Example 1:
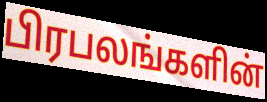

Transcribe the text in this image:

பிரபலங்களின்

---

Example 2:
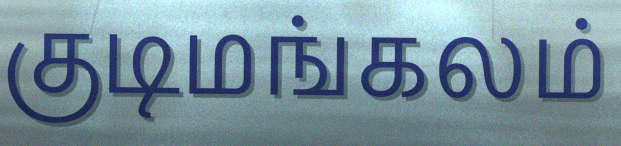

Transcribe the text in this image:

குடிமங்கலம்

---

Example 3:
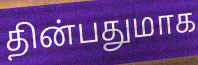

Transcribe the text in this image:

தின்பதுமாக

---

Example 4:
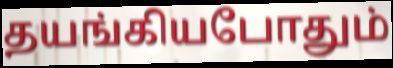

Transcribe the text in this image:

தயங்கியபோதும்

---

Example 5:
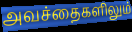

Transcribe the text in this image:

அவச்தைகளிலும்